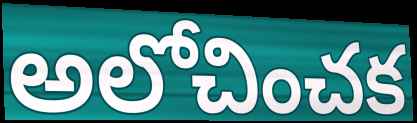
అలోచించక